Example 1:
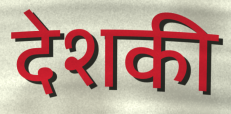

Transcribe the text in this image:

देशकी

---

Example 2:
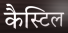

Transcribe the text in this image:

कैस्टिल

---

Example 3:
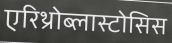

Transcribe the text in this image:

एरिथ्रोब्लास्टोसिस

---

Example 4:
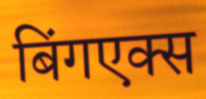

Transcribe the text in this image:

बिंगएक्स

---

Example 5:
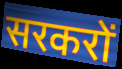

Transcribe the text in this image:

सरकरों